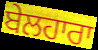
ਬੇਲਹਾਰਾ